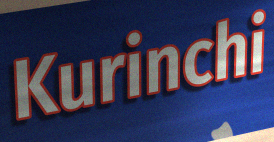
Kurinchi